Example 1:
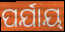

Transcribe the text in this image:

ପର୍ଯାୟ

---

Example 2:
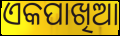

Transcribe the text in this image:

ଏକପାଖିଆ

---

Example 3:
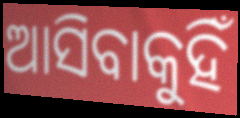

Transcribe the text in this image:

ଆସିବାକୁହିଁ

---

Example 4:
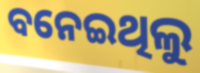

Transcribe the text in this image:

ବନେଇଥିଲୁ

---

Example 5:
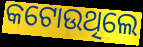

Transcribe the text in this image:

କଟୋଉଥିଲେ